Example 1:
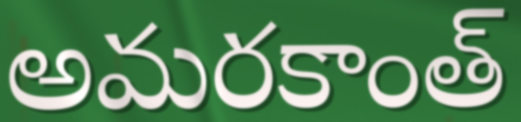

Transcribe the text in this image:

అమరకాంత్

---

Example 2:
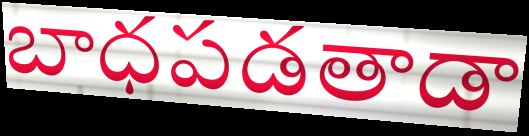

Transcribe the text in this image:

బాధపడతాడా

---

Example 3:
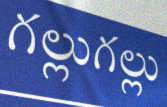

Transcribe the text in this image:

గల్లుగల్లు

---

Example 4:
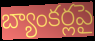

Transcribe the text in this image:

బ్యాంకర్లపై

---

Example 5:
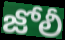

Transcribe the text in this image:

జోలీ